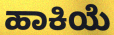
ಹಾಕಿಯೆ